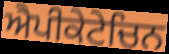
ਐਪੀਕੇਟੇਚਿਨ